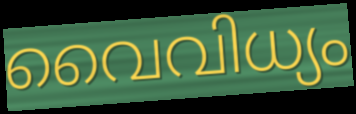
വൈവിധ്യം